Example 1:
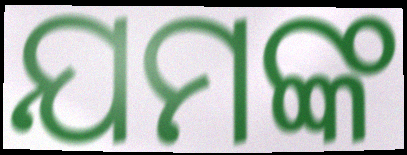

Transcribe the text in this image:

ଯମଙ୍କ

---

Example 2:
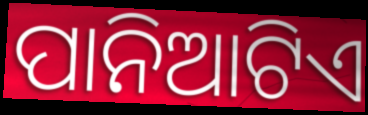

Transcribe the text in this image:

ପାନିଆଟିଏ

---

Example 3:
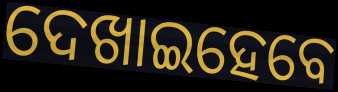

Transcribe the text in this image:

ଦେଖାଇହେବେ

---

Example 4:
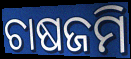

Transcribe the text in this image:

ଚାଷଜମି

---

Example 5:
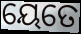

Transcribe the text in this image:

ୟେତେ